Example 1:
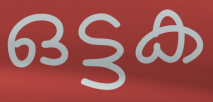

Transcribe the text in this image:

ഒട്ടക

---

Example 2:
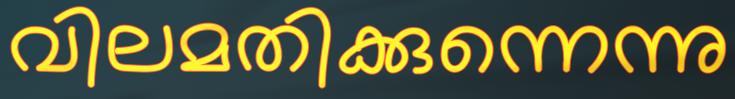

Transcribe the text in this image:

വിലമതിക്കുന്നെന്നു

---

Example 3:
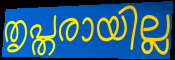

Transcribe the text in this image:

തൃപ്തരായില്ല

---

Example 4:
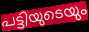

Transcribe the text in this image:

പട്ടിയുടെയും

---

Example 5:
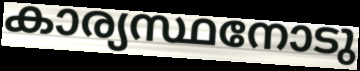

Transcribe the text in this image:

കാര്യസ്ഥനോടു